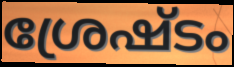
ശ്രേഷ്ടം